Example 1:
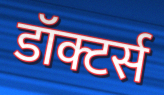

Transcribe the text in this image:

डॉक्टर्स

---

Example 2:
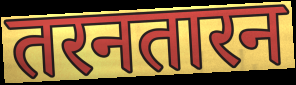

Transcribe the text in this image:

तरनतारन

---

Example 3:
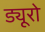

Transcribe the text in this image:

ड्यूरो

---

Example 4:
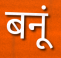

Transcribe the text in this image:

बनूं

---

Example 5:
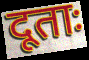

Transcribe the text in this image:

दूताः